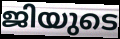
ജിയുടെ